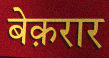
बेक़रार